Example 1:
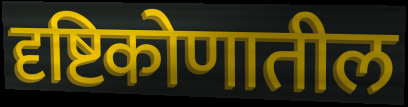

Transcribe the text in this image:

दृष्टिकोणातील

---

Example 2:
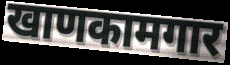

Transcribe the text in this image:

खाणकामगार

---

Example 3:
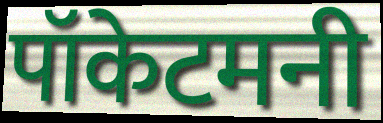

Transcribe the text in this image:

पॉकेटमनी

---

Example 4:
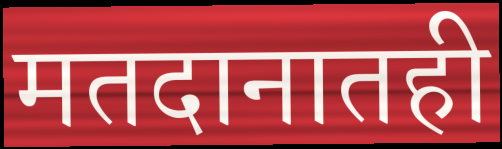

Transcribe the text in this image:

मतदानातही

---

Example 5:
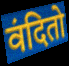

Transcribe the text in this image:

वंदितो